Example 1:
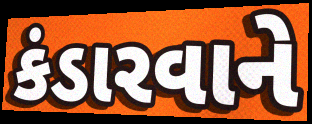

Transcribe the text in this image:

કંડારવાને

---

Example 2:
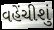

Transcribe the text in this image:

વહેંચીશું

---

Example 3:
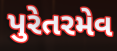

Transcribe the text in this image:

પુરેતરમેવ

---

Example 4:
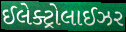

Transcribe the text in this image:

ઈલેક્ટ્રોલાઈઝર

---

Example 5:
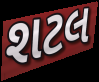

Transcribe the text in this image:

શટલ